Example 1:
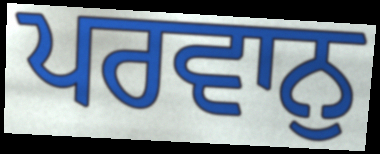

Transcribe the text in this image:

ਪਰਵਾਨੁ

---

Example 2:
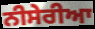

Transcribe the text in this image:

ਨੀਸੇਰੀਆ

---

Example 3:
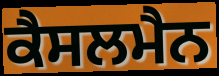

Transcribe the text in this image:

ਕੈਸਲਮੈਨ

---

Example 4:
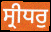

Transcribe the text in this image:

ਸ੍ਰੀਧਰੁ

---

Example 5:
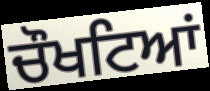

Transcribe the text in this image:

ਚੌਖਟਿਆਂ